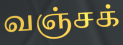
வஞ்சக்